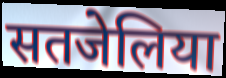
सतजेलिया